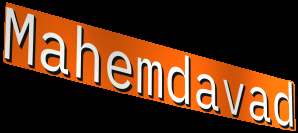
Mahemdavad